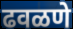
ढवळणे